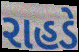
રાહડે